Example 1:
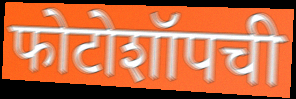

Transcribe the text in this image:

फोटोशॉपची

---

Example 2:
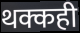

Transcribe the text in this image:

थक्कही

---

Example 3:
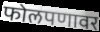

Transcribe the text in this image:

फोलपणावर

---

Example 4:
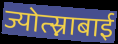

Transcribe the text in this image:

ज्योत्स्नाबाई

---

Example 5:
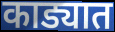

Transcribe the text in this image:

काड्यात